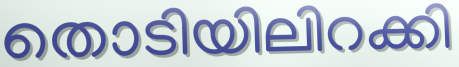
തൊടിയിലിറക്കി